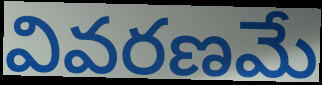
వివరణమే